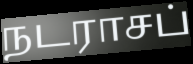
நடராசப்